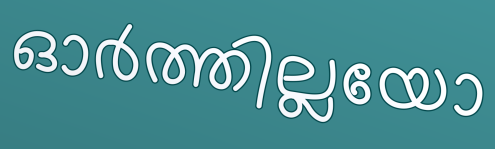
ഓർത്തില്ലയോ